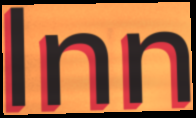
Inn